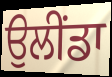
ਉਲੀਂਡਾ